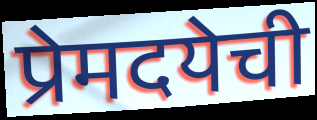
प्रेमदयेची